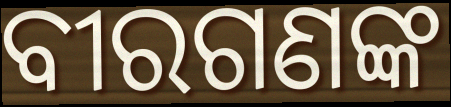
ବୀରଗଣଙ୍କ